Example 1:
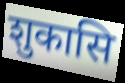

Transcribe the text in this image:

शुकासि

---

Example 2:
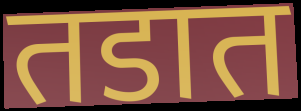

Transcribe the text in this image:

तडात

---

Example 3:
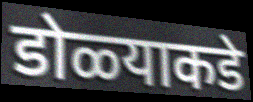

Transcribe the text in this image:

डोळ्याकडे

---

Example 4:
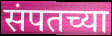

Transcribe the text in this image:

संपतच्या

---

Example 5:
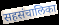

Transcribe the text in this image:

सहसंचालिका